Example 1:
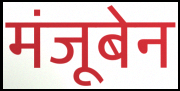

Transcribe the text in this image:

मंजूबेन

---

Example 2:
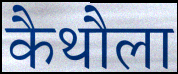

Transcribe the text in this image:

कैथौला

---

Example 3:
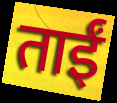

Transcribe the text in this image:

ताईं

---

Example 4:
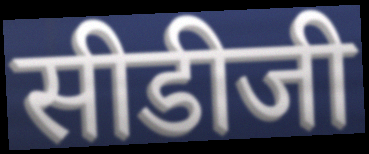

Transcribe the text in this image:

सीडीजी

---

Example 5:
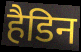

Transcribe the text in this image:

हैडिन